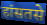
हांसतसे